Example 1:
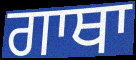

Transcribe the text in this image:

ਗਾਥਾ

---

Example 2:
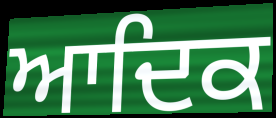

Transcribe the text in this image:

ਆਦਿਕ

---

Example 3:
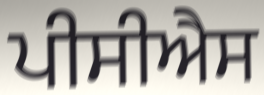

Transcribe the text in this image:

ਪੀਸੀਐਸ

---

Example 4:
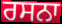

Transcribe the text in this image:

ਰਸਨਾ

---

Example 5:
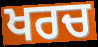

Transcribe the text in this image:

ਖਰਚ